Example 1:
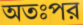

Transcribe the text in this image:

অতঃপর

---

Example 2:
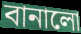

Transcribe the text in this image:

বানালো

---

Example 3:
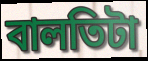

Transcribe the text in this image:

বালতিটা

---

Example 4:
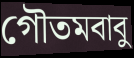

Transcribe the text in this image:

গৌতমবাবু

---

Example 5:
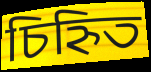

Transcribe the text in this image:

চিহ্নিত